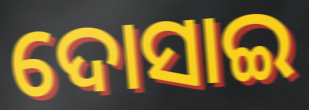
ଦୋସାଇ